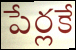
పేర్లకే